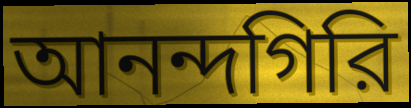
আনন্দগিরি